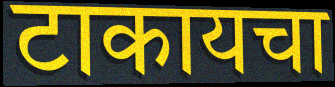
टाकायचा